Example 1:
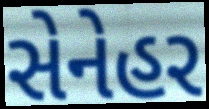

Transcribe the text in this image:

સેનેહર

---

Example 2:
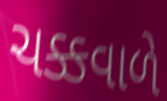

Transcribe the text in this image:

ચક્કવાળે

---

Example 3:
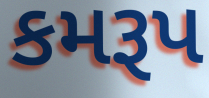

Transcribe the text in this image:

કમરૂપ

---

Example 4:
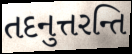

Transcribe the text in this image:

તદનુત્તરન્તિ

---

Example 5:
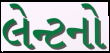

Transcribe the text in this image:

લેન્ટનો